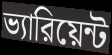
ভ্যারিয়েন্ট